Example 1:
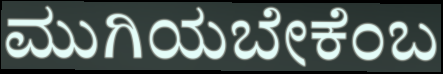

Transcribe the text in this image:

ಮುಗಿಯಬೇಕೆಂಬ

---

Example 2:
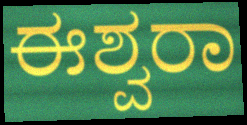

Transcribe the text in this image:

ಈಶ್ವರಾ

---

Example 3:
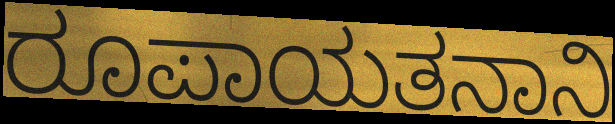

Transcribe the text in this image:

ರೂಪಾಯತನಾನಿ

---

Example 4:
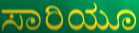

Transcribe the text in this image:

ಸಾರಿಯೂ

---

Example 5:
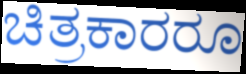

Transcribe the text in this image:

ಚಿತ್ರಕಾರರೂ